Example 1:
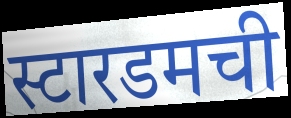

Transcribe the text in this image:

स्टारडमची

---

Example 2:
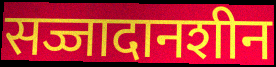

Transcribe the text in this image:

सज्जादानशीन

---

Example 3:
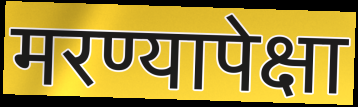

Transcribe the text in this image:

मरण्यापेक्षा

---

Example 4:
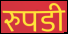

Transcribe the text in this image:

रुपडी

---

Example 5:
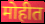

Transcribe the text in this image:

मोहीत